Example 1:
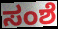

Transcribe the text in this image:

ಸಂಶೆ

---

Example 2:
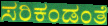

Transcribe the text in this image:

ಸರಿಕಂಡಂತೆ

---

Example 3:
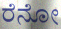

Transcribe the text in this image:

ರೆನೋ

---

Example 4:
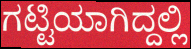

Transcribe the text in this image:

ಗಟ್ಟಿಯಾಗಿದ್ದಲ್ಲಿ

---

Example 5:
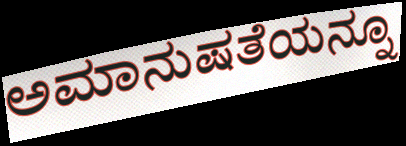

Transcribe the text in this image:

ಅಮಾನುಷತೆಯನ್ನೂ